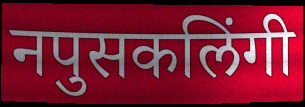
नपुसकलिंगी